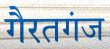
गैरतगंज